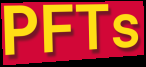
PFTs